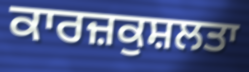
ਕਾਰਜ਼ਕੁਸ਼ਲਤਾ